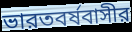
ভারতবর্ষবাসীর